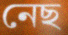
নেছ